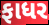
ફાધર